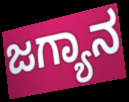
ಜಗ್ಯಾನ